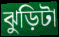
ঝুড়িটা